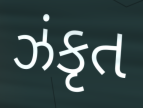
ઝંકૃત